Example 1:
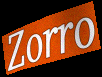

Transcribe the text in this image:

Zorro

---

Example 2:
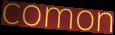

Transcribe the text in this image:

comon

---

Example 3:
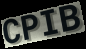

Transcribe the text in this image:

CPIB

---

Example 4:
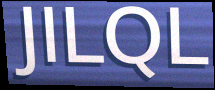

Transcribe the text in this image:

JILQL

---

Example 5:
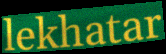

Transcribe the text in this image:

lekhatar